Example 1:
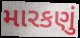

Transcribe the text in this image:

મારકણું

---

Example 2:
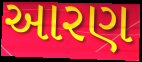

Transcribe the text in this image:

આરણ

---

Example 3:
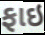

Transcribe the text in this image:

ફાઇ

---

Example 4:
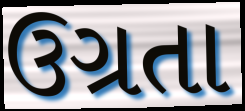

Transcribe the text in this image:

ઉગ્રતા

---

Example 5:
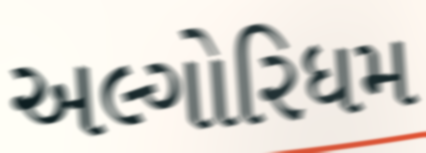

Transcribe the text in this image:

અલ્ગોરિધમ